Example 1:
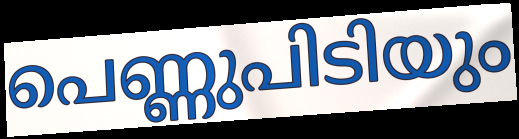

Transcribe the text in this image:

പെണ്ണുപിടിയും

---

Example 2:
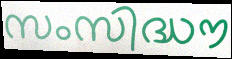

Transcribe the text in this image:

സംസിദ്ധൗ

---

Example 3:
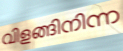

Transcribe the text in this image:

വിളങ്ങിനിന്ന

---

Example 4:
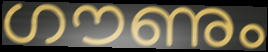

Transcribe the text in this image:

ഗൗണും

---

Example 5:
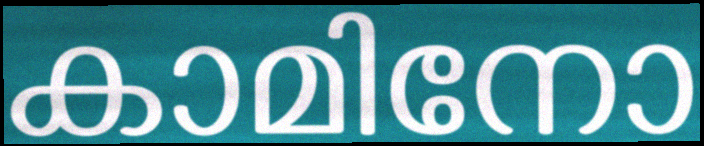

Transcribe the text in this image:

കാമിനോ